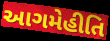
આગમેહીતિ